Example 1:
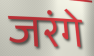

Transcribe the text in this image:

जरंगे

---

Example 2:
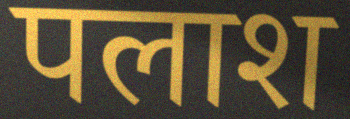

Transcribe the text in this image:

पलाश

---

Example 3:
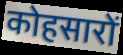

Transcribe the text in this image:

कोहसारों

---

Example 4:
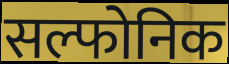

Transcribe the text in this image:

सल्फोनिक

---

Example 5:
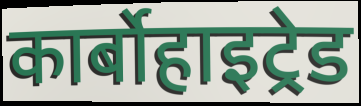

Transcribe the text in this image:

कार्बोहाइट्रेड